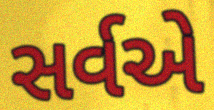
સર્વએ